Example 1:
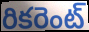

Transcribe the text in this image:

రికరెంట్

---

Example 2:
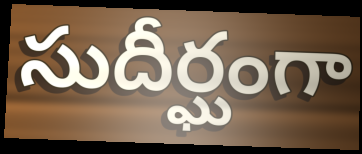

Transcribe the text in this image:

సుదీర్ఘంగా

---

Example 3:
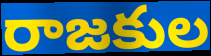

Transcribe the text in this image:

రాజకుల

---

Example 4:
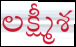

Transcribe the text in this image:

లక్ష్మీశ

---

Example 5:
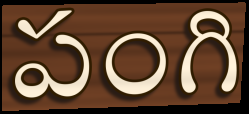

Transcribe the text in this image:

పంగి